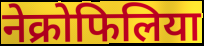
नेक्रोफिलिया